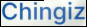
Chingiz